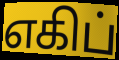
எகிப்